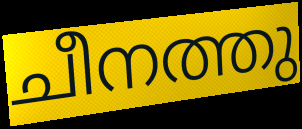
ചീനത്തു